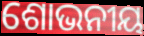
ଶୋଭନୀୟ